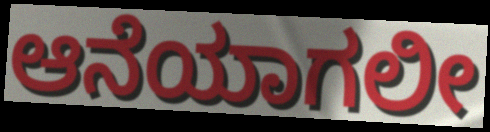
ಆನೆಯಾಗಲೀ